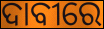
ଦାବୀରେ